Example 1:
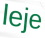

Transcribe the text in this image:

leje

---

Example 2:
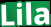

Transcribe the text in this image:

Lila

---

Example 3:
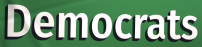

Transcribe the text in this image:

Democrats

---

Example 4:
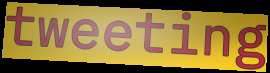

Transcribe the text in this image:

tweeting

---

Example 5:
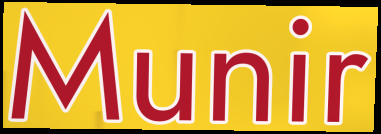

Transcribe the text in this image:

Munir